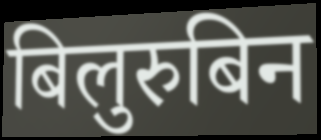
बिलुरुबिन